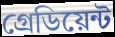
গ্রেডিয়েন্ট